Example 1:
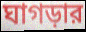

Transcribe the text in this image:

ঘাগড়ার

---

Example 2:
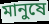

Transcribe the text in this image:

মানুষে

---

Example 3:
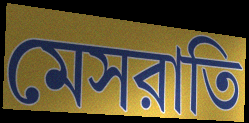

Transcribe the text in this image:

মেসরাতি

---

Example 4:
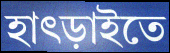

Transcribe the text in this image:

হাৎড়াইতে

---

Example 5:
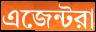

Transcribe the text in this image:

এজেন্টরা